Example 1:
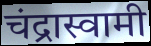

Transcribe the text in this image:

चंद्रास्वामी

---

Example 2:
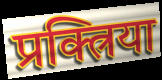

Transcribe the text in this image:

प्रक्त्रिया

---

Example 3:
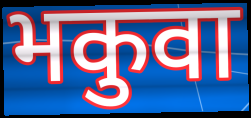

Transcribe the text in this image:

भकुवा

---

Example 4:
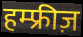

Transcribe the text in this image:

हम्फ्रीज़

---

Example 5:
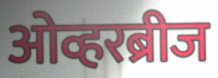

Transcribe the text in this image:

ओव्हरब्रीज